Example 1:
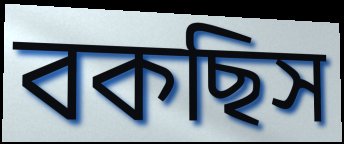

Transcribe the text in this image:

বকছিস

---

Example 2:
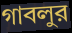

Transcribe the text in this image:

গাবলুর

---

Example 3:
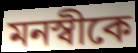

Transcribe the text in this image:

মনস্বীকে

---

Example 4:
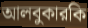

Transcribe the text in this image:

আলবুকারকি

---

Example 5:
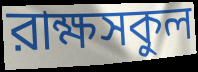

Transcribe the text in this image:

রাক্ষসকুল